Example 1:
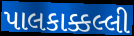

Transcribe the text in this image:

પાલકાક્કલ્લી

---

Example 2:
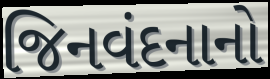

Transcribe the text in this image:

જિનવંદનાનો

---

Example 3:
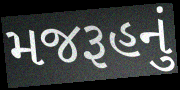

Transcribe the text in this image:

મજરૂહનું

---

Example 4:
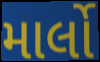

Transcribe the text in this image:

માર્લો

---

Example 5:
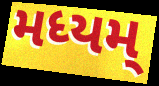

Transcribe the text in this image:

મધ્યમ્